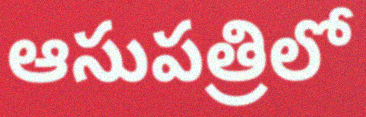
ఆసుపత్రిలో